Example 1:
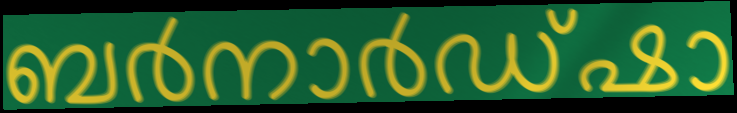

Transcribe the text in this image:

ബർനാർഡ്ഷാ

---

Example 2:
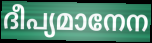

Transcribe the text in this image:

ദീപ്യമാനേന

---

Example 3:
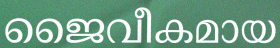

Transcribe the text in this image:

ജൈവീകമായ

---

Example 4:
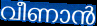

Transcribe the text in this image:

വീണാൻ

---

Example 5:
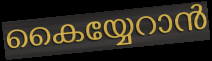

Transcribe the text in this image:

കൈയ്യേറാൻ